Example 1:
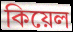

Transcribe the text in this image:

কিয়েল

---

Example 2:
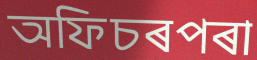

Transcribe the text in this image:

অফিচৰপৰা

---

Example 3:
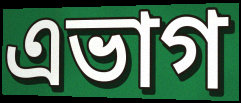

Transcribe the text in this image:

এভাগ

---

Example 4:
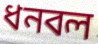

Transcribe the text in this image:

ধনবল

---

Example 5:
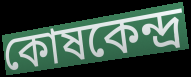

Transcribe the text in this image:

কোষকেন্দ্ৰ